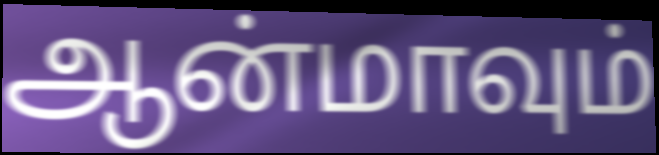
ஆன்மாவும்